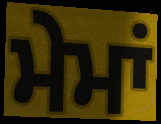
ਮੇਮਾਂ